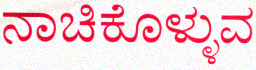
ನಾಚಿಕೊಳ್ಳುವ